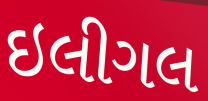
ઇલીગલ